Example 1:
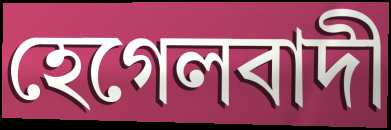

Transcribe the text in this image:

হেগেলবাদী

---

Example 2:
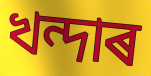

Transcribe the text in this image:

খন্দাৰ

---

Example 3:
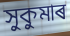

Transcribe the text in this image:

সুকুমাৰ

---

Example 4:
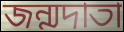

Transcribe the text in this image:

জন্মদাতা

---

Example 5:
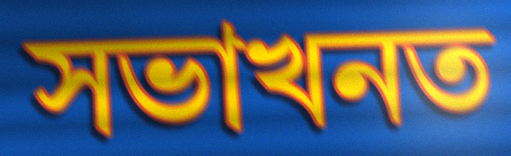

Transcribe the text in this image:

সভাখনত